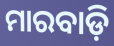
ମାରବାଡ଼ି